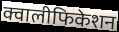
क्वालीफिकेशन